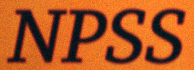
NPSS